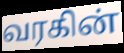
வரகின்